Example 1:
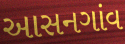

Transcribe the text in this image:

આસનગાંવ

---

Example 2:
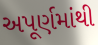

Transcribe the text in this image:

અપૂર્ણમાંથી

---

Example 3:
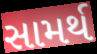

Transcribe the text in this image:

સામર્થ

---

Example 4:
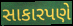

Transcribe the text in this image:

સાકારપણે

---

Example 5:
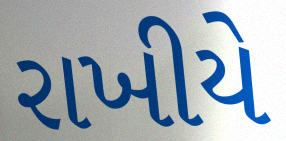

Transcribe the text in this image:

રાખીયે